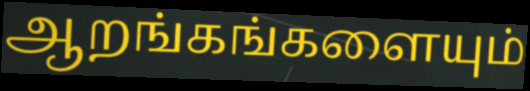
ஆறங்கங்களையும்